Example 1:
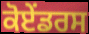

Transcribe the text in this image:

ਕੋਏਂਡਰਸ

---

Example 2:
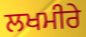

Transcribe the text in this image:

ਲਖਮੀਰੇ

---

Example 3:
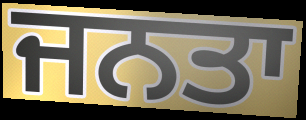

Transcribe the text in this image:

ਜਨਤਾ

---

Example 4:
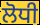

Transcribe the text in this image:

ਲੋਧੀ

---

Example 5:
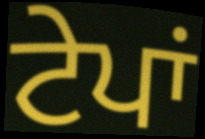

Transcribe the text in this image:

ਟੇਪਾਂ